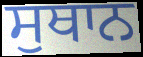
ਸੁਥਾਨ